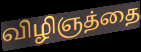
விழிஞத்தை